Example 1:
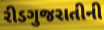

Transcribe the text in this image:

રીડગુજરાતીની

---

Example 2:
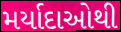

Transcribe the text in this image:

મર્યાદાઓથી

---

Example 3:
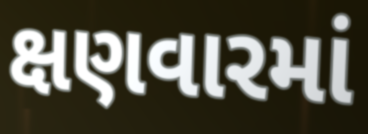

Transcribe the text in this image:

ક્ષણવારમાં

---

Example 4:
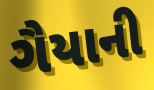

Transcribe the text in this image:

ગૈયાની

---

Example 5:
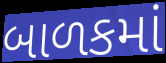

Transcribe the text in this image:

બાળકમાં